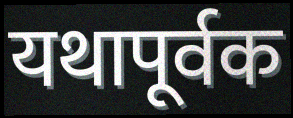
यथापूर्वक